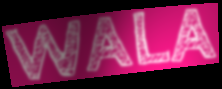
WALA